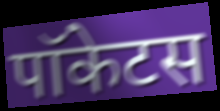
पॉकेटस